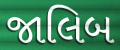
જાલિબ